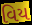
વિય